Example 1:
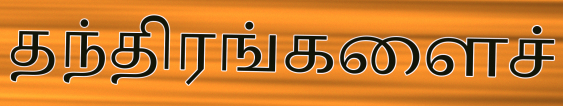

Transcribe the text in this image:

தந்திரங்களைச்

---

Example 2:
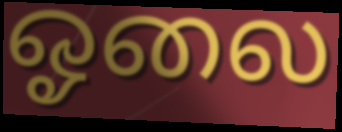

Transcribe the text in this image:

ஓலை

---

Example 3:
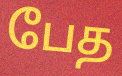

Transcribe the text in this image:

பேத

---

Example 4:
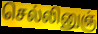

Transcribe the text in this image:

செல்லினுஞ்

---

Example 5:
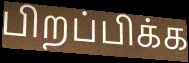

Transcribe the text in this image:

பிறப்பிக்க